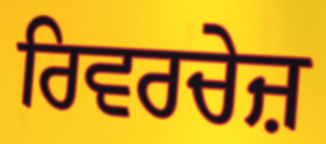
ਰਿਵਰਚੇਜ਼